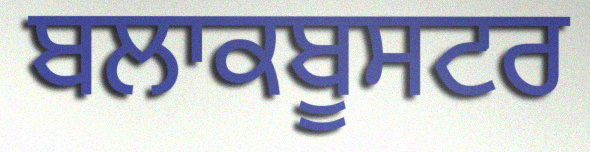
ਬਲਾਕਬੂਸਟਰ